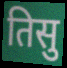
तिसु